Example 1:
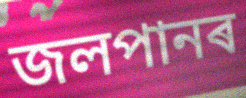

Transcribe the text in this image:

জলপানৰ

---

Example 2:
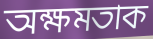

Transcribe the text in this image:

অক্ষমতাক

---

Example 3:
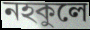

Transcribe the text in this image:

নহকুলে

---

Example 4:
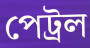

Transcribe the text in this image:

পেট্ৰল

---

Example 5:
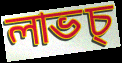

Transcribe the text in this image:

লাভচ্